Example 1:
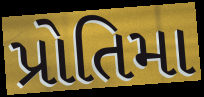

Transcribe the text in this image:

પ્રોતિમા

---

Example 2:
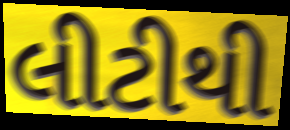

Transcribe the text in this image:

લીટીથી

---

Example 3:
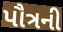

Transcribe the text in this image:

પૌત્રની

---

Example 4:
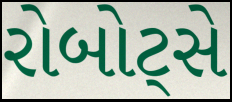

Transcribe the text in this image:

રોબોટ્સે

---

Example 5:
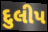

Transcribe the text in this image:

દુલીપ